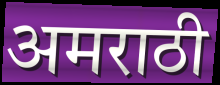
अमराठी